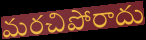
మరచిపోరాదు